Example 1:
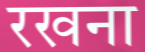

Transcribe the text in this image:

रखना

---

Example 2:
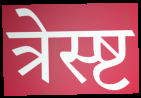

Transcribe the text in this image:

त्रेस्ष्ट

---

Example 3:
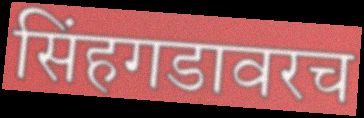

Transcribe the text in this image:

सिंहगडावरच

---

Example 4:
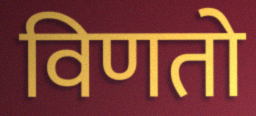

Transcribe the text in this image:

विणतो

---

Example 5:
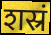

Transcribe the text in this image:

शस्रं